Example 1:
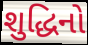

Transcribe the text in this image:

શુદ્ધિનો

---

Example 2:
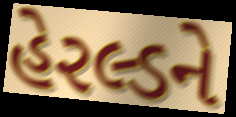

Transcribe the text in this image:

હેરલ્ડને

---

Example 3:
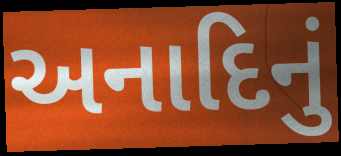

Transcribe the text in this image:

અનાદિનું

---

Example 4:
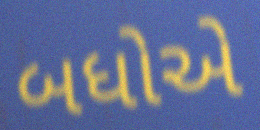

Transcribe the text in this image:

બધોએ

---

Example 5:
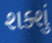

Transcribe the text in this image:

શક્શું